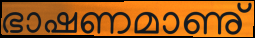
ഭാഷണമാണു്